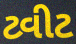
ટ્વીટ